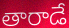
తారాడే